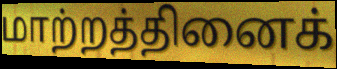
மாற்றத்தினைக்